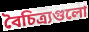
বৈচিত্র্যগুলো